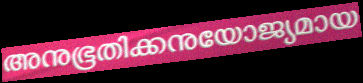
അനുഭൂതിക്കനുയോജ്യമായ